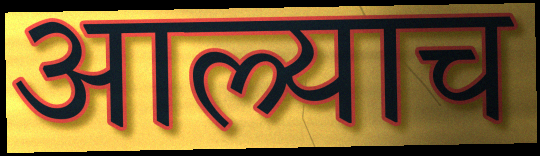
आल्याच